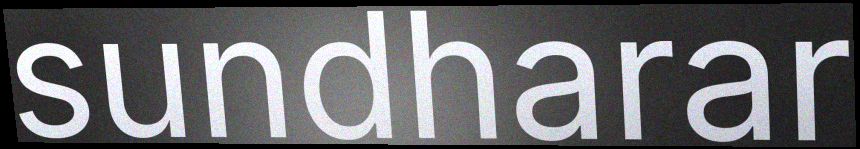
sundharar